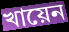
খায়েন